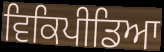
ਵਿਕਿਪੀਡਿਆ